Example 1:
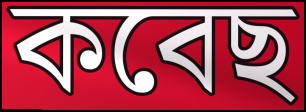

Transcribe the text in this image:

কবেছ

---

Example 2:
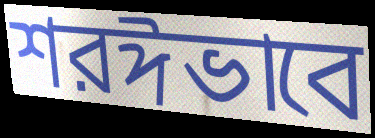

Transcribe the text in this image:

শরঈভাবে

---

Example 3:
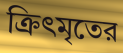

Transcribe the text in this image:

ক্রিৎমৃতের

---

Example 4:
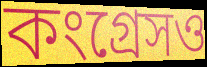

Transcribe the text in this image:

কংগ্রেসও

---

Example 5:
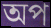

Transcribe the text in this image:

অপ